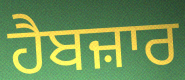
ਹੈਬਜ਼ਾਰ